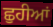
ਛੁਹੀਆਂ